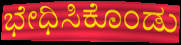
ಭೇಧಿಸಿಕೊಂಡು